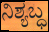
ನಿಶ್ಯಬ್ಧ